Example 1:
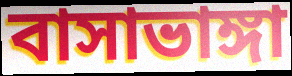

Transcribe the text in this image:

বাসাভাঙ্গা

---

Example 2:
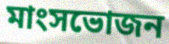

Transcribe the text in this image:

মাংসভোজন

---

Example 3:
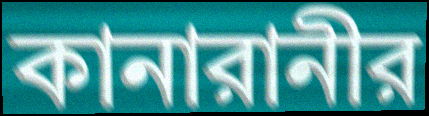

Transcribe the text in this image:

কানারানীর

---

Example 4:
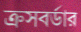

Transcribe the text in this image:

ক্রসবর্ডার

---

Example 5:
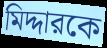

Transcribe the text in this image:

মিদ্দারকে